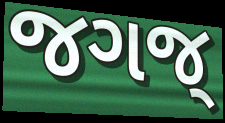
જગજ્